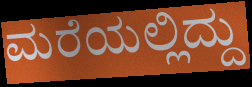
ಮರೆಯಲ್ಲಿದ್ದು